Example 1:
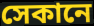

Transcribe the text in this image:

সেকানে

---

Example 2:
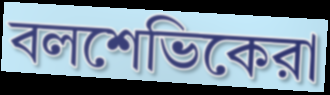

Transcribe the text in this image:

বলশেভিকেরা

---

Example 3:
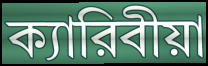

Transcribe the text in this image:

ক্যারিবীয়া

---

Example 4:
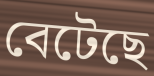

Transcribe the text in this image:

বেটেছে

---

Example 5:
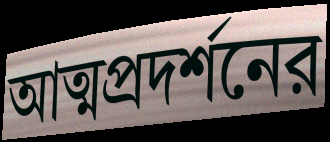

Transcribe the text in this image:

আত্মপ্রদর্শনের